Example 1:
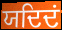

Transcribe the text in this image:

ਯਦਿਦਂ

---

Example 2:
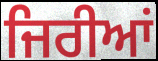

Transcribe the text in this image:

ਜਿਰੀਆਂ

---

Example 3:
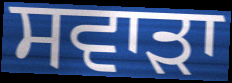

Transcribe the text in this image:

ਸਵਾੜਾ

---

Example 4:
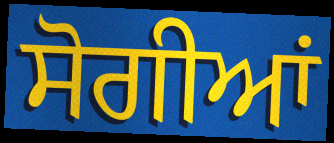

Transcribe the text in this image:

ਸੋਗੀਆਂ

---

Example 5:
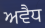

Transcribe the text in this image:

ਅਵੈਧ